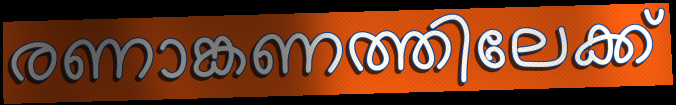
രണാങ്കണത്തിലേക്ക്